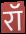
रॉ